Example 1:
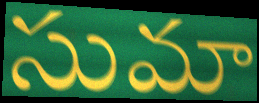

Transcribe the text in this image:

సుమా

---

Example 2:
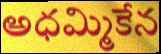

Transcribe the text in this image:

అధమ్మికేన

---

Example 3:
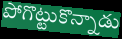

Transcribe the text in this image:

పోగొట్టుకొన్నాడు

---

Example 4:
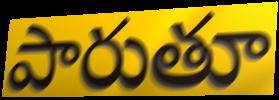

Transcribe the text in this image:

పారుతూ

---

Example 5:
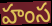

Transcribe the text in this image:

హంస